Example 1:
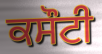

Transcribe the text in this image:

ਕਸੌਟੀ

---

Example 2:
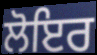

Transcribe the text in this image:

ਲੋਇਰ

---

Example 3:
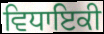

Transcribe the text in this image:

ਵਿਧਾਇਕੀ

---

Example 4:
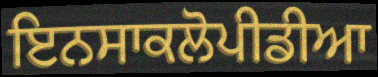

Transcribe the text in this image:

ਇਨਸਾਕਲੋਪੀਡੀਆ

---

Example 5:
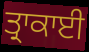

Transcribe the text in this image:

ਤ੍ਰਾਕਾਈ